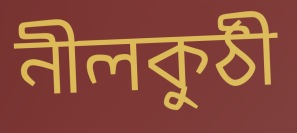
নীলকুঠী